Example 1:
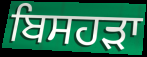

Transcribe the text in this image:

ਬਿਸਹੜਾ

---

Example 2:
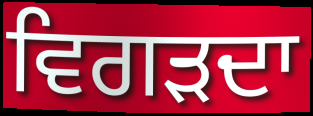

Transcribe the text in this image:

ਵਿਗੜਦਾ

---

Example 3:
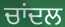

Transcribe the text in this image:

ਚਾਂਦਲ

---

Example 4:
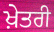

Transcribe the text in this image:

ਖ਼ੇਤਰੀ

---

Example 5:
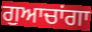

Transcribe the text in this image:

ਗੁਆਚਾਂਗਾ